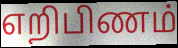
எறிபிணம்